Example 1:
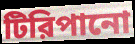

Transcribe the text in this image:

টিরিপানো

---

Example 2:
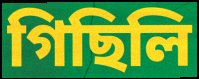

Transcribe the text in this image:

গিছিলি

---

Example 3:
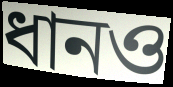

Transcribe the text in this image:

ধানও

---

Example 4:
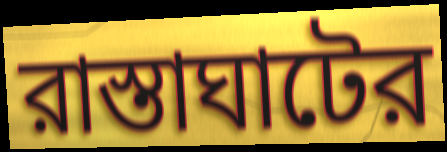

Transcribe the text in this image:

রাস্তাঘাটের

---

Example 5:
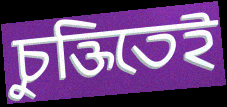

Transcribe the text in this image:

চুক্তিতেই